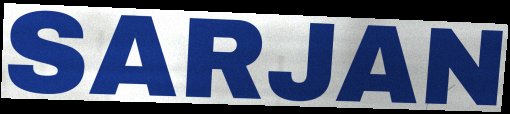
SARJAN